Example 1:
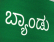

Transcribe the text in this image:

ಬ್ಯಾಂಡು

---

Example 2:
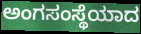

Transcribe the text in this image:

ಅಂಗಸಂಸ್ಥೆಯಾದ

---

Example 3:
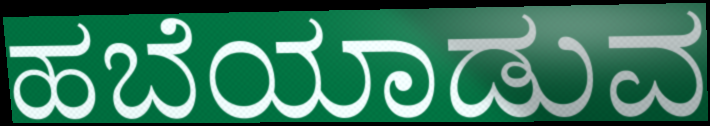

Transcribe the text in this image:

ಹಬೆಯಾಡುವ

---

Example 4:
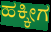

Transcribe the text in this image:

ಹಕ್ಕೀಗ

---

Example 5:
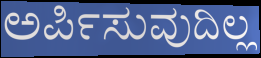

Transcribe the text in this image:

ಅರ್ಪಿಸುವುದಿಲ್ಲ